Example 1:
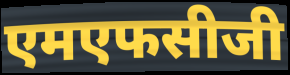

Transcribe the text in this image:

एमएफसीजी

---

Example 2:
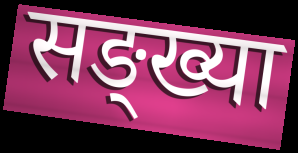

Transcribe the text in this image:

सङ्ख्या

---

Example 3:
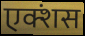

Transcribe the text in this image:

एक्शंस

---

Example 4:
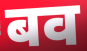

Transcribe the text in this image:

बव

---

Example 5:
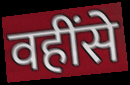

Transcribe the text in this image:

वहींसे